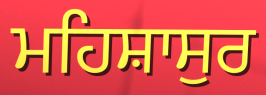
ਮਹਿਸ਼ਾਸੁਰ